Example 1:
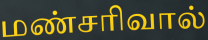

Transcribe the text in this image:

மண்சரிவால்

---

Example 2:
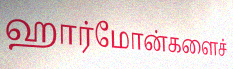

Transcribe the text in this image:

ஹார்மோன்களைச்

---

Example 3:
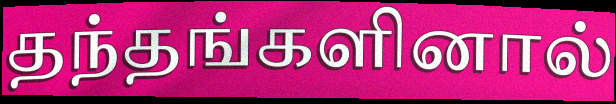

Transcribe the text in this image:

தந்தங்களினால்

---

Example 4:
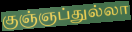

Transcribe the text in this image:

குஞ்ஞப்துல்லா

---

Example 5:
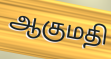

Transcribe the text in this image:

ஆகுமதி